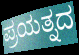
ಪ್ರಯತ್ನದ